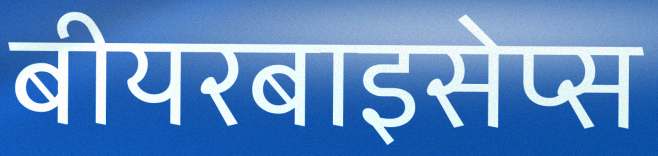
बीयरबाइसेप्स